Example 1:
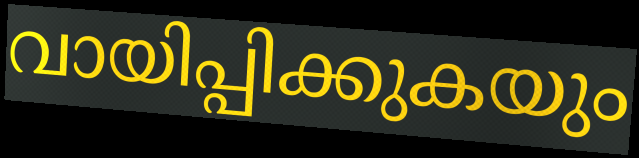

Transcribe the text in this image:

വായിപ്പിക്കുകയും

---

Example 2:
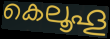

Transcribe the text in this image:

കെലൂഹൂ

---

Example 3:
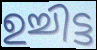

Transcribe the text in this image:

ഉച്ചിട്ട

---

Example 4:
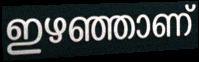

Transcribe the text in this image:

ഇഴഞ്ഞാണ്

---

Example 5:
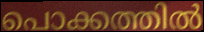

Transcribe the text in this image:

പൊക്കത്തിൽ